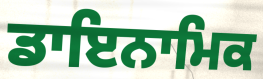
ਡਾਇਨਾਮਿਕ